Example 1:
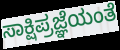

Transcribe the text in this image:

ಸಾಕ್ಷಿಪ್ರಜ್ಞೆಯಂತೆ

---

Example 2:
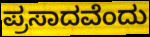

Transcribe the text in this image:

ಪ್ರಸಾದವೆಂದು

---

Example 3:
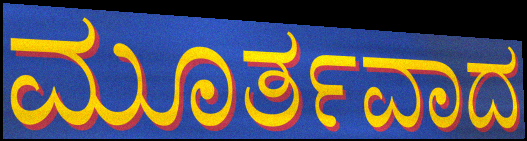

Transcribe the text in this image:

ಮೂರ್ತವಾದ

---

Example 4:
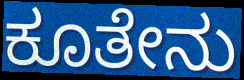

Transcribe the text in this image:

ಕೂತೇನು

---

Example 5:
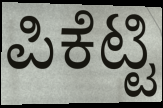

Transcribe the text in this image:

ಪಿಕೆಟ್ಟಿ